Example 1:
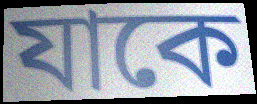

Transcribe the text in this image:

যাকে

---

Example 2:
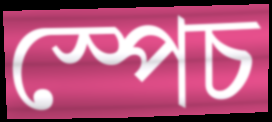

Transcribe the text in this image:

স্পেচ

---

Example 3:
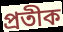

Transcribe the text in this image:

প্ৰতীক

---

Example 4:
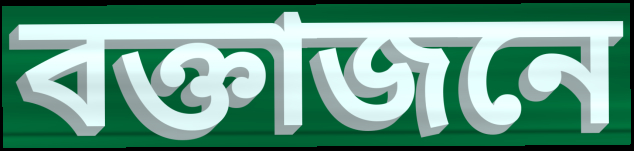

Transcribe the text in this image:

বক্তাজনে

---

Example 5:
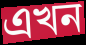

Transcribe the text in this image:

এখন